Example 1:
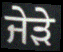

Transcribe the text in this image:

ਜੇੜੇ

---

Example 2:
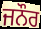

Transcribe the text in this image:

ਜਨੌਰ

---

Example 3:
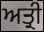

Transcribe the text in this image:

ਅਤ੍ਰੀ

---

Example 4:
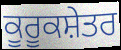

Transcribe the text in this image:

ਕੂਰੂਕਸ਼ੇਤਰ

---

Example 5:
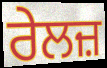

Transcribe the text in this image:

ਰੇਲਜ਼